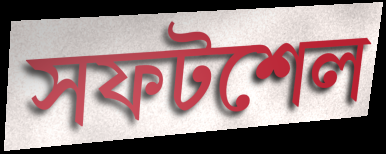
সফটশেল